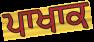
ਪਾਖਾਕ